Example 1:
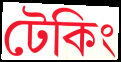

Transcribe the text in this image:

টেকিং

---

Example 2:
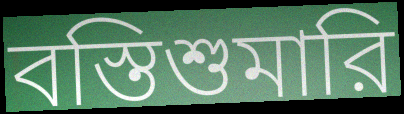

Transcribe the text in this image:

বস্তিশুমারি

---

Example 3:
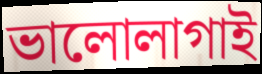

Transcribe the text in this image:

ভালোলাগাই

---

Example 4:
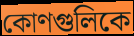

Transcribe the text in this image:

কোণগুলিকে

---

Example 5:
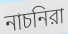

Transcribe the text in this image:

নাচনিরা